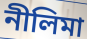
নীলিমা